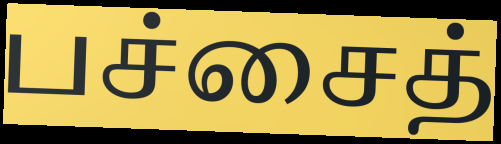
பச்சைத்